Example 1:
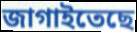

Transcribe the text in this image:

জাগাইতেছে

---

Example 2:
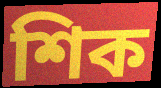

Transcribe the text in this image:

শিক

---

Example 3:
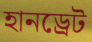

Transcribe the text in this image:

হানড্রেট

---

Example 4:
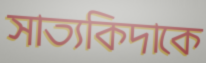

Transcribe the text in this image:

সাত্যকিদাকে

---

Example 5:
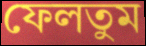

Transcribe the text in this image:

ফেলতুম